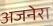
अजनेरा